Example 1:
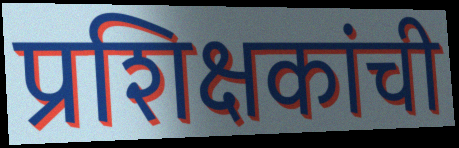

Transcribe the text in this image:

प्रशिक्षकांची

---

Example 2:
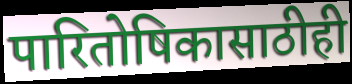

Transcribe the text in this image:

पारितोषिकासाठीही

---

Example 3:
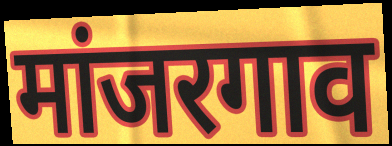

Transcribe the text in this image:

मांजरगाव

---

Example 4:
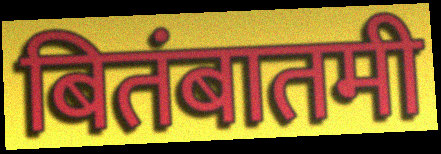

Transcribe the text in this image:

बितंबातमी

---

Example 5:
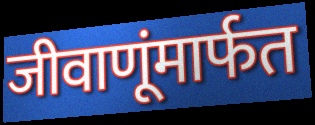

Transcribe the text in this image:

जीवाणूंमार्फत